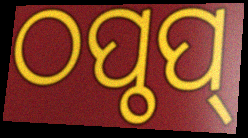
ଠପ୍ଠପ୍